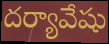
దర్యావేషు